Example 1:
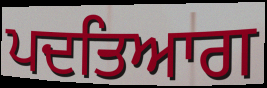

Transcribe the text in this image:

ਪਦਤਿਆਗ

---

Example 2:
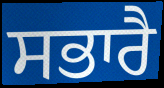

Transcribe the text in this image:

ਸਭਾਰੈ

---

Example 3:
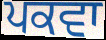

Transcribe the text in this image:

ਪਕਵਾ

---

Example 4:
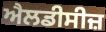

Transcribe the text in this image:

ਐਲਡੀਸੀਜ਼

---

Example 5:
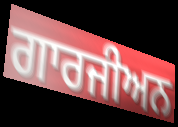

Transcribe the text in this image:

ਗਾਰਜੀਅਨ